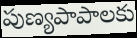
పుణ్యపాపాలకు